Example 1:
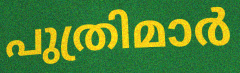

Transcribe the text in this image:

പുത്രിമാർ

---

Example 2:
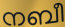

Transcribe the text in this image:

നബീ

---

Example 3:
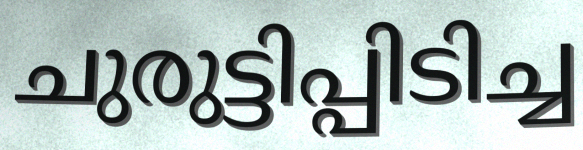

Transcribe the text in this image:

ചുരുട്ടിപ്പിടിച്ച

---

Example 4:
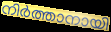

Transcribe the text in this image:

നിർത്താനായി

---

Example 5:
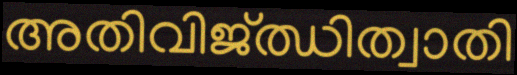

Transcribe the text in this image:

അതിവിജ്ഝിത്വാതി